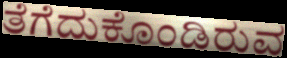
ತೆಗೆದುಕೊಂಡಿರುವ